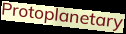
Protoplanetary